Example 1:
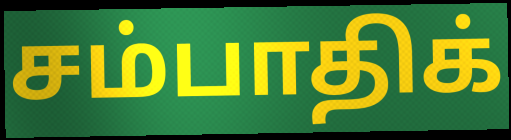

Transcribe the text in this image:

சம்பாதிக்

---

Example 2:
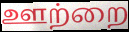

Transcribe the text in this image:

ஊற்றை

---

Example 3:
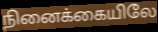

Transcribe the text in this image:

நினைக்கையிலே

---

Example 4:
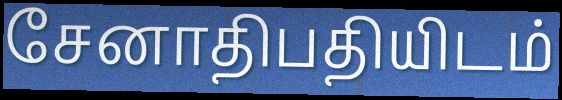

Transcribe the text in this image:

சேனாதிபதியிடம்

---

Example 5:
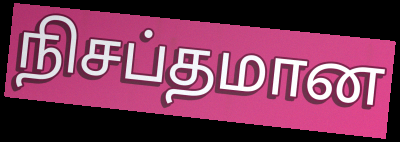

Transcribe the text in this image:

நிசப்தமான